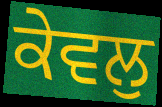
ਕੇਵਲੁ